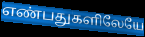
எண்பதுகளிலேயே